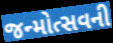
જન્મોત્સવની